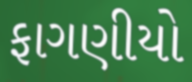
ફાગણીયો